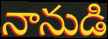
నానుడి